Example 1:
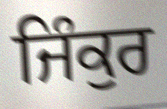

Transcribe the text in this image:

ਜਿੰਕੁਰ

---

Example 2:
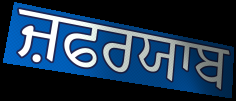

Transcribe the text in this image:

ਜ਼ਫਰਯਾਬ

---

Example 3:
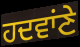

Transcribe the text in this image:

ਹਦਵਾਂਣੇ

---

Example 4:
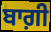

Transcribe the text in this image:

ਬਾਗ਼ੀ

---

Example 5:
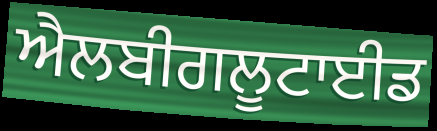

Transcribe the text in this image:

ਐਲਬੀਗਲੂਟਾਈਡ